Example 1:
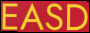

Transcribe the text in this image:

EASD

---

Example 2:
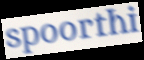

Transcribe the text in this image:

spoorthi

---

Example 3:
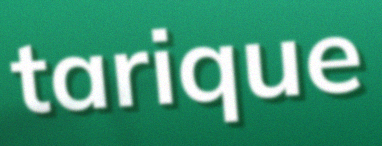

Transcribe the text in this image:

tarique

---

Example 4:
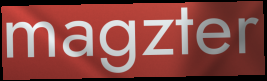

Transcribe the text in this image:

magzter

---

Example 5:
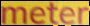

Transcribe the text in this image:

meter